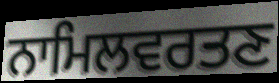
ਨਾਮਿਲਵਰਤਣ